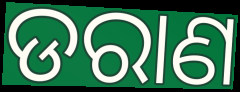
ଡରାଣ